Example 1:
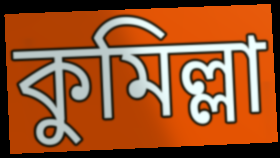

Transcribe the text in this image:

কুমিল্লা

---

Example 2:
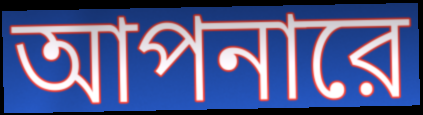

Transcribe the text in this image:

আপনারে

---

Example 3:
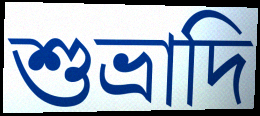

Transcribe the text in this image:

শুভ্রাদি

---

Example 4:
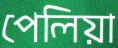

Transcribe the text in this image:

পেলিয়া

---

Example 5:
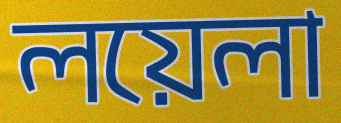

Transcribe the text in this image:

লয়েলা